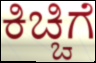
ಕಿಚ್ಚಿಗೆ